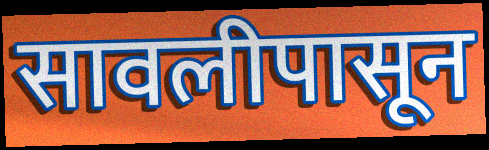
सावलीपासून